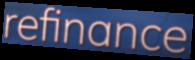
refinance